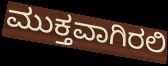
ಮುಕ್ತವಾಗಿರಲಿ